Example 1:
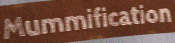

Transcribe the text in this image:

Mummification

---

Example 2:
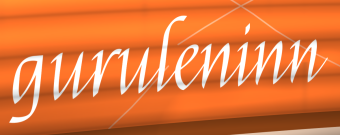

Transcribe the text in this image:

guruleninn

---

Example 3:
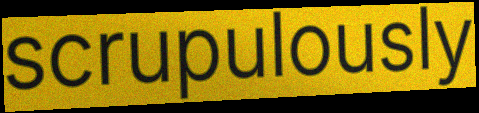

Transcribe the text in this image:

scrupulously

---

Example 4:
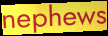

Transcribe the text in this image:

nephews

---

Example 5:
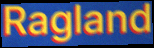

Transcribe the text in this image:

Ragland